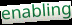
enabling